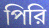
পিরি